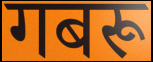
गबरू